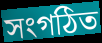
সংগঠিত